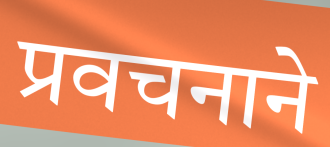
प्रवचनाने